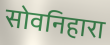
सोवनिहारा